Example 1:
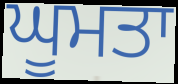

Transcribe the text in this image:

ਘੂਮਤਾ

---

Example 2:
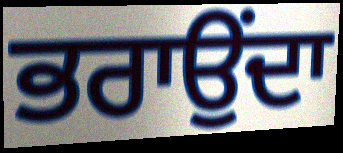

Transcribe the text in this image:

ਭਰਾਉਂਦਾ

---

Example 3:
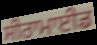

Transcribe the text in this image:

ਸੀਰਾਮਾਈਡ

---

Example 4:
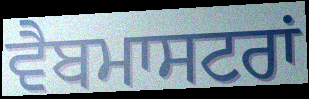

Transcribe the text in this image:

ਵੈਬਮਾਸਟਰਾਂ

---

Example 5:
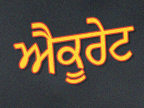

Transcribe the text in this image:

ਐਕੂਰੇਟ